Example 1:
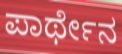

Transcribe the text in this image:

ಪಾರ್ಥೇನ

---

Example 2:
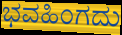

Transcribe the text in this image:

ಭವಹಿಂಗದು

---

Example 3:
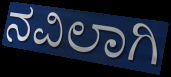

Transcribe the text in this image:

ನವಿಲಾಗಿ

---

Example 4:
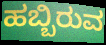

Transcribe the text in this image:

ಹಬ್ಬಿರುವ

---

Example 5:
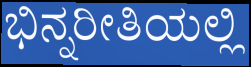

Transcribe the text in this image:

ಭಿನ್ನರೀತಿಯಲ್ಲಿ